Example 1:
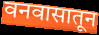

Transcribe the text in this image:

वनवासातून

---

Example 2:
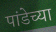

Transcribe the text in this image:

पांडेच्या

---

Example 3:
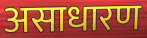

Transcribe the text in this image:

असाधारण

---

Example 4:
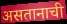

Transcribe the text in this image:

असतानाची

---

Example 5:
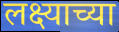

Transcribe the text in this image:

लक्ष्याच्या